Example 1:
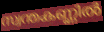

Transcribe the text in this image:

സ്വന്തകണ്ണിൽ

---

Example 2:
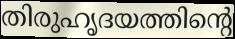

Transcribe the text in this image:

തിരുഹൃദയത്തിന്റെ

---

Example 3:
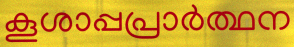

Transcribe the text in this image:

കൂശാപ്പപ്രാർത്ഥന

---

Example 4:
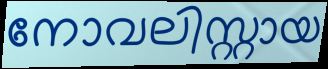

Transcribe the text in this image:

നോവലിസ്റ്റായ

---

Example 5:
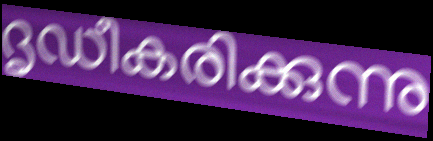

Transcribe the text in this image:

ദൃഡീകരിക്കുന്നു